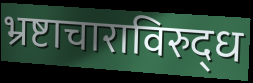
भ्रष्टाचाराविरुद्ध